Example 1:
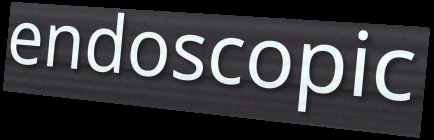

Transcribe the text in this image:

endoscopic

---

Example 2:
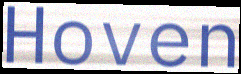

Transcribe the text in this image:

Hoven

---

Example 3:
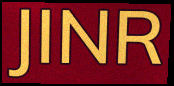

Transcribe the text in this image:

JINR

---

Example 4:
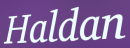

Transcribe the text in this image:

Haldan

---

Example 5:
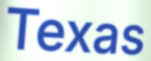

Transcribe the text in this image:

Texas